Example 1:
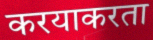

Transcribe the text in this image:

करयाकरता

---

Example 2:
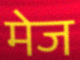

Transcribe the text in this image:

मेज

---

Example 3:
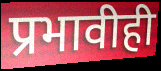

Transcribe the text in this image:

प्रभावीही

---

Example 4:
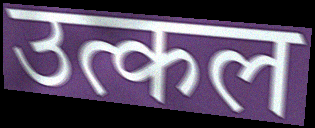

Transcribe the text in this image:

उत्कल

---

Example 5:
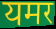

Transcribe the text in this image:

यमर